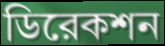
ডিরেকশন